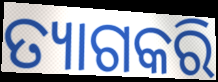
ତ୍ଯାଗକରି